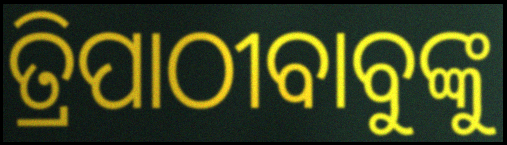
ତ୍ରିପାଠୀବାବୁଙ୍କୁ